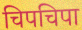
चिपचिपा